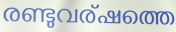
രണ്ടുവര്ഷത്തെ